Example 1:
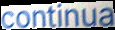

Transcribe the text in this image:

continua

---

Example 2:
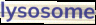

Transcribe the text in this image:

lysosome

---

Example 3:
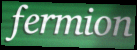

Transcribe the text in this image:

fermion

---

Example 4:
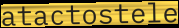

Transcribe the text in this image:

atactostele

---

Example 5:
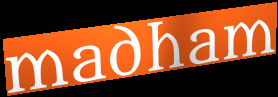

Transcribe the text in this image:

madham